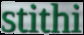
stithi